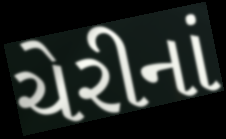
ચેરીનાં